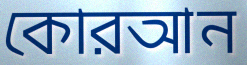
কোরআন